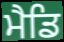
ਮੈਡਿ